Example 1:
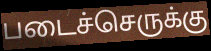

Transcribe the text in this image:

படைச்செருக்கு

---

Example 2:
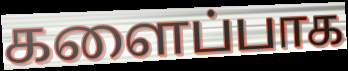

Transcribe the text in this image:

களைப்பாக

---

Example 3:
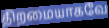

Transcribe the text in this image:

திறமையாகவே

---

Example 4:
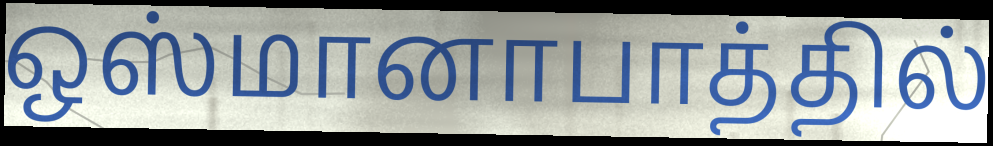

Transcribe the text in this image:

ஒஸ்மானாபாத்தில்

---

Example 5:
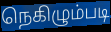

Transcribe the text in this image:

நெகிழும்படி